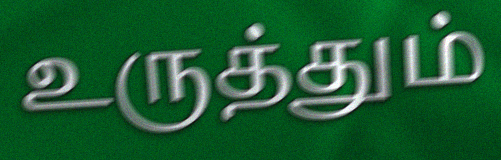
உருத்தும்